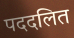
पददलित